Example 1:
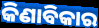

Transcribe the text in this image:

କିଣାବିକାର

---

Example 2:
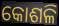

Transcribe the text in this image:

କୋଶଳି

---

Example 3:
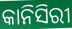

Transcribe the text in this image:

କାନିସିରୀ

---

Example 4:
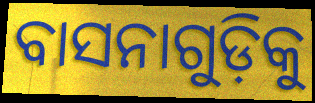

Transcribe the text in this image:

ବାସନାଗୁଡ଼ିକୁ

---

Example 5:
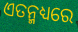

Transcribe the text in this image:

ଏତନ୍ମଧ୍ୟରେ